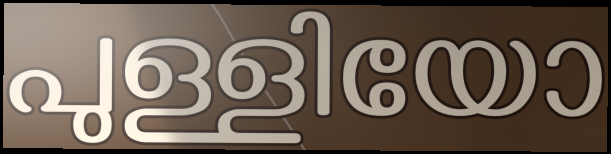
പുള്ളിയോ